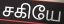
சகியே